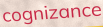
cognizance